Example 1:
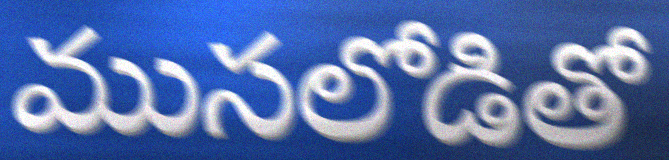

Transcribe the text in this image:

ముసలోడితో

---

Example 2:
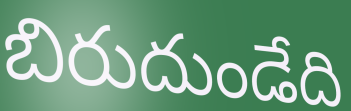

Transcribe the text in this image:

బిరుదుండేది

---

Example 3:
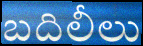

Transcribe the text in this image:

బదిలీలు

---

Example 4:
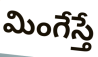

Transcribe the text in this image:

మింగేస్తే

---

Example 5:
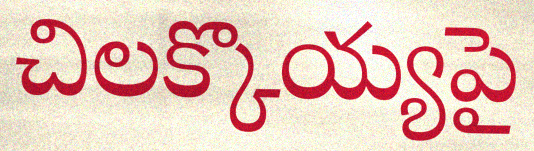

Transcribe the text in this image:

చిలక్కొయ్యపై